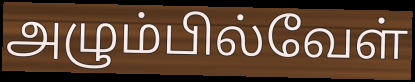
அழும்பில்வேள்